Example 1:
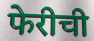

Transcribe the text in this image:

फेरीची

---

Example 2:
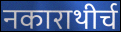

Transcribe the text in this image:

नकाराथीर्च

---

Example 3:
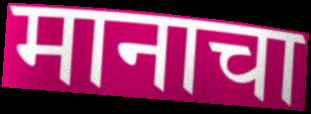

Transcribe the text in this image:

मानाचा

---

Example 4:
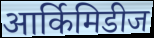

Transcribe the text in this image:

आर्किमिडीज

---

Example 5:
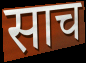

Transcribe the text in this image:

साच